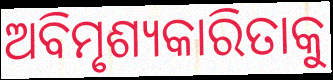
ଅବିମୃଶ୍ୟକାରିତାକୁ